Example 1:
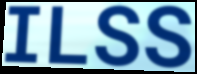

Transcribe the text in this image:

ILSS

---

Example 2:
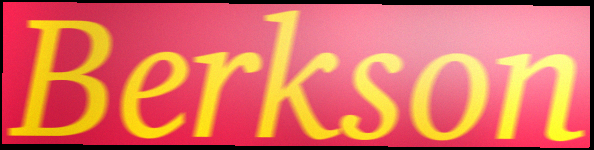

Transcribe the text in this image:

Berkson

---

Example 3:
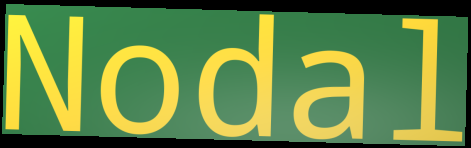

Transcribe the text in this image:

Nodal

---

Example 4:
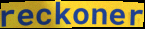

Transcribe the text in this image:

reckoner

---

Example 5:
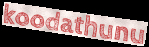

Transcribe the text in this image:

koodathunu